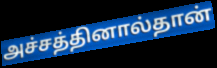
அச்சத்தினால்தான்